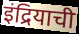
इंद्रियाची